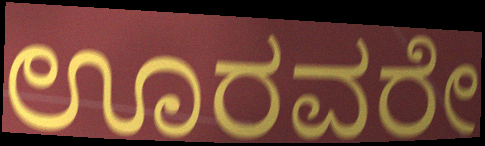
ಊರವರೇ